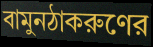
বামুনঠাকরুণের